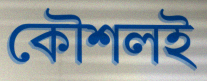
কৌশলই